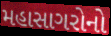
મહાસાગરોનો